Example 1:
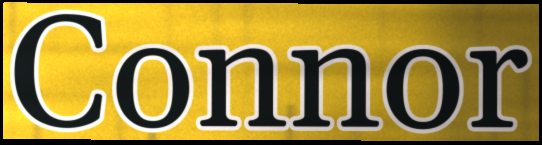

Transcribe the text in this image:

Connor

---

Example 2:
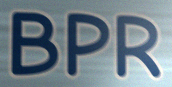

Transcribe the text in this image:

BPR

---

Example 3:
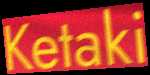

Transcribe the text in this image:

Ketaki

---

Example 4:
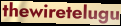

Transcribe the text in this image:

thewiretelugu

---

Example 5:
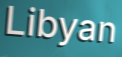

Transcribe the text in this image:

Libyan